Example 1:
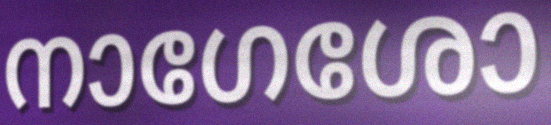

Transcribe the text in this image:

നാഗേശോ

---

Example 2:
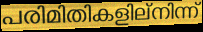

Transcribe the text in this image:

പരിമിതികളില്നിന്ന്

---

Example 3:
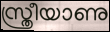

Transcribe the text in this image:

സ്ത്രീയാണു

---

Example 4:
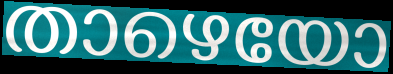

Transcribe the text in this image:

താഴെയോ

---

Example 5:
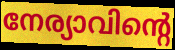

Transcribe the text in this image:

നേര്യാവിന്റെ